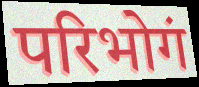
परिभोगं